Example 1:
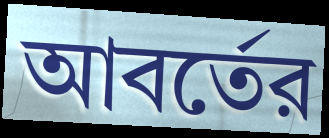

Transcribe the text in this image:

আবর্তের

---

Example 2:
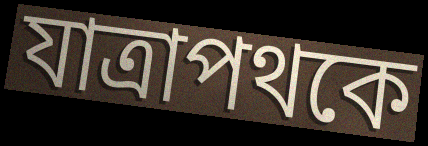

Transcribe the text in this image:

যাত্রাপথকে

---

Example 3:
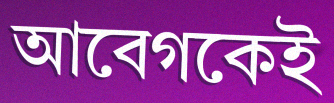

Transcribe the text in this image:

আবেগকেই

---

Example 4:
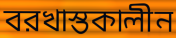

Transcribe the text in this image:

বরখাস্তকালীন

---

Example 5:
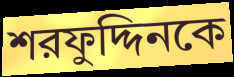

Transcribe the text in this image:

শরফুদ্দিনকে